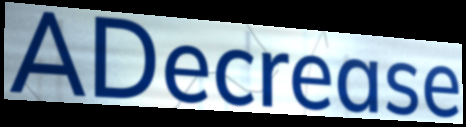
ADecrease